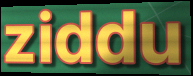
ziddu